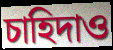
চাহিদাও